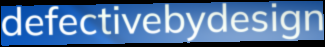
defectivebydesign